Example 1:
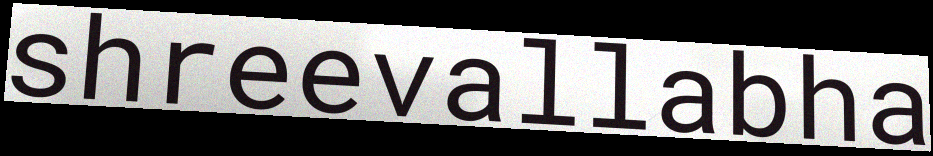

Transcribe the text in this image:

shreevallabha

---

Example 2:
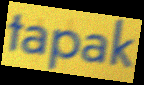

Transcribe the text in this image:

tapak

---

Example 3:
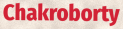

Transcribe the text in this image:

Chakroborty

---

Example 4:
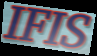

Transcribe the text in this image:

IFIS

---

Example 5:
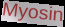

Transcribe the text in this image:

Myosin